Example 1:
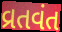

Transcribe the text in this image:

વ્રતવંત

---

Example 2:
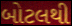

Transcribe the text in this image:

બોટલથી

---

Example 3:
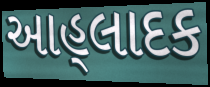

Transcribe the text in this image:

આહ્‌લાદક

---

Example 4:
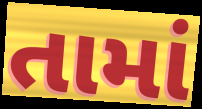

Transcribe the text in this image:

તામાં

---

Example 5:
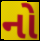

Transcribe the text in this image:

નો